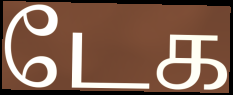
டேக